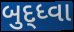
બુદ્ધ્વા